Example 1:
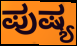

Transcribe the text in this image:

ಪುಷ್ಯ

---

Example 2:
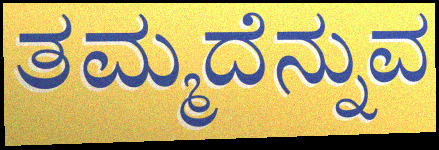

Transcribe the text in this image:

ತಮ್ಮದೆನ್ನುವ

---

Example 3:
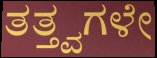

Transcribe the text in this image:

ತತ್ತ್ವಗಳೇ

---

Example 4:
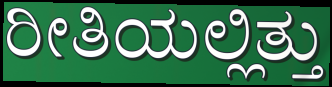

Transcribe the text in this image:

ರೀತಿಯಲ್ಲಿತ್ತು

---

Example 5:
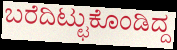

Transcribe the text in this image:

ಬರೆದಿಟ್ಟುಕೊಂಡಿದ್ದ